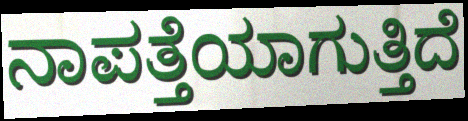
ನಾಪತ್ತೆಯಾಗುತ್ತಿದೆ